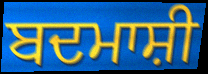
ਬਦਮਾਸ਼ੀ